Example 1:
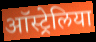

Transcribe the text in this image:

ऑस्ट्रेलिया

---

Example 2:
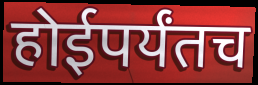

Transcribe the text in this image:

होईपर्यंतच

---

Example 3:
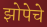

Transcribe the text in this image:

झोपेचे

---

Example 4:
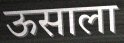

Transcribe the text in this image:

ऊसाला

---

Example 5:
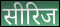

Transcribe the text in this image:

सीरिज